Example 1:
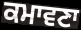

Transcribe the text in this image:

ਕਮਾਵਣਾ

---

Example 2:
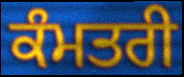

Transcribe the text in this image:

ਕੰਮਤਰੀ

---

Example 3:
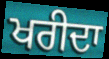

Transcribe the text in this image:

ਖਰੀਦਾ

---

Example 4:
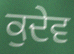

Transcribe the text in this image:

ਕੁਦੇਵ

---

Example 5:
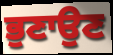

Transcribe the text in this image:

ਭੁਣਾਉਣ